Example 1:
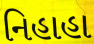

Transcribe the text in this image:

નિહાહા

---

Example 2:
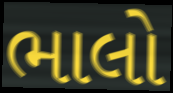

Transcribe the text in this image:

ભાલો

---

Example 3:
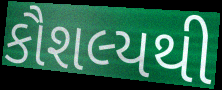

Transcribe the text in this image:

કૌશલ્યથી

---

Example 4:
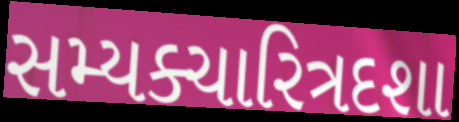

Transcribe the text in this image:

સમ્યક્ચારિત્રદશા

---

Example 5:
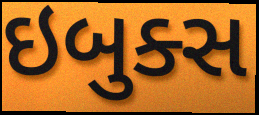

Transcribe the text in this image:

ઇબુક્સ